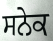
ਸਨੇਕ